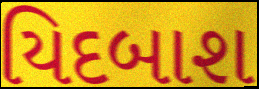
યિદબાશ